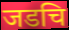
जडचि